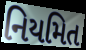
નિયમિત